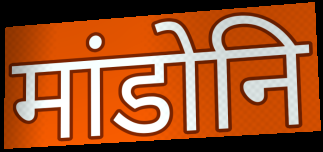
मांडोनि